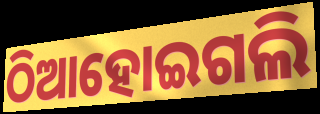
ଠିଆହୋଇଗଲି